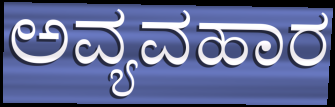
ಅವ್ಯವಹಾರ